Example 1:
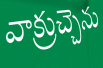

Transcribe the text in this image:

వాక్రుచ్చెను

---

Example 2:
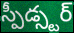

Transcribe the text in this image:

స్పీడ్స్టర్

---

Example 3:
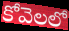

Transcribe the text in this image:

కోవెలలో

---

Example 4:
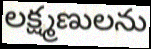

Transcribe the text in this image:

లక్ష్మణులను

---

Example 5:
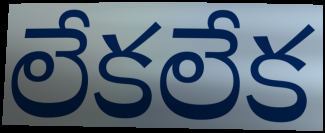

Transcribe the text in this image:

లేకలేక